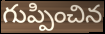
గుప్పించిన